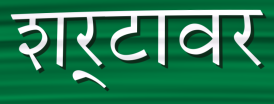
शर्टावर